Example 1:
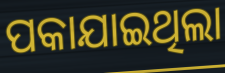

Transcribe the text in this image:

ପକାଯାଇଥିଲା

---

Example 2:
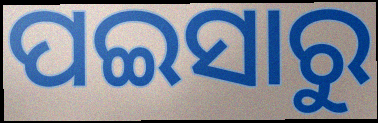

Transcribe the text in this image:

ପଇସାରୁ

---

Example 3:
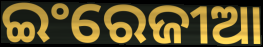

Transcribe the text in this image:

ଇଂରେଜୀଆ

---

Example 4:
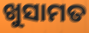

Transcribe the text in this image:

ଖୁସାମତ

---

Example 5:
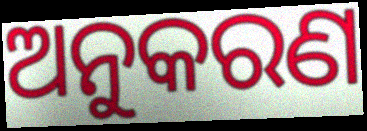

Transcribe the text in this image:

ଅନୁକରଣ